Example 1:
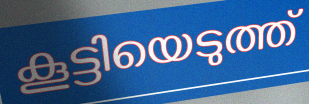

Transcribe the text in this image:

കൂട്ടിയെടുത്ത്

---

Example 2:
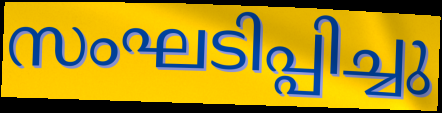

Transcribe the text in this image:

സംഘടിപ്പിച്ചു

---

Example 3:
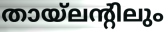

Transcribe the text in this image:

തായ്ലന്റിലും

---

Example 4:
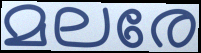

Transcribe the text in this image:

മലരേ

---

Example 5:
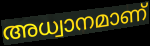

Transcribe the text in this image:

അധ്വാനമാണ്